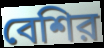
বেশির